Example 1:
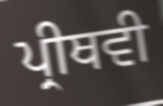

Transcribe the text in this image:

ਪ੍ਰੀਥਵੀ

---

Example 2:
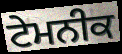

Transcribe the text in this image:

ਟੇਮਨੀਕ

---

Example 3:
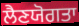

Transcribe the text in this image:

ਲੈਣਯੋਗਤਾ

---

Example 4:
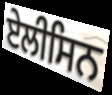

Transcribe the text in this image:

ਏਲੀਸਿਨ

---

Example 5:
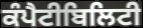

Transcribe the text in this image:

ਕੰਪੈਟੀਬਿਲਿਟੀ